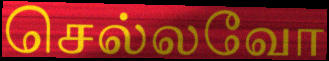
செல்லவோ